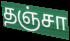
தஞ்சா